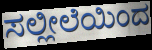
ಸಲ್ಲೀಲೆಯಿಂದ